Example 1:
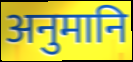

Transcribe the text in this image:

अनुमानि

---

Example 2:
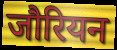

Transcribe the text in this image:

जौरियन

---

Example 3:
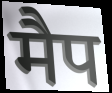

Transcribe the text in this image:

मैप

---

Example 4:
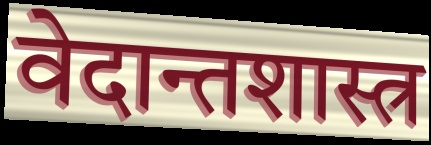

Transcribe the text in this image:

वेदान्तशास्त्र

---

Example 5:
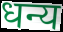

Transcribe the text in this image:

धन्य